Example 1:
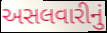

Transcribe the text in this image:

અસલવારીનું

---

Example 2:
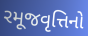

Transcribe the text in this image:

રમૂજવૃત્તિનો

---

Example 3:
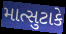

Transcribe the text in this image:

માત્સુટાકે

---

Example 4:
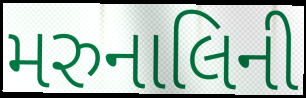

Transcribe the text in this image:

મરુનાલિની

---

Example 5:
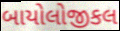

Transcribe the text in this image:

બાયોલોજીકલ